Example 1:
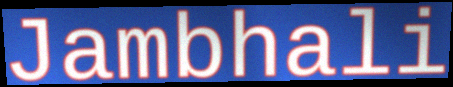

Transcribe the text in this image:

Jambhali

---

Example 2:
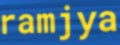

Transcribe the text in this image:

ramjya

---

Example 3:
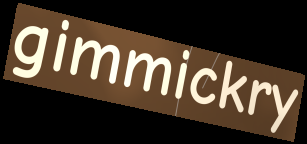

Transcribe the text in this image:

gimmickry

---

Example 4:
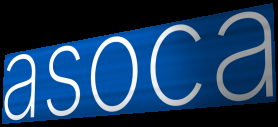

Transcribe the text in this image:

asoca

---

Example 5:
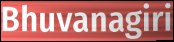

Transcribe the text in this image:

Bhuvanagiri